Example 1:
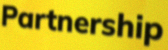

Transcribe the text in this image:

Partnership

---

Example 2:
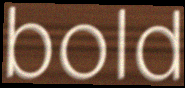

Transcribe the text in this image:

bold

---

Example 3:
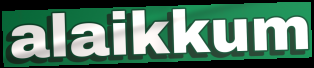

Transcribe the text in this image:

alaikkum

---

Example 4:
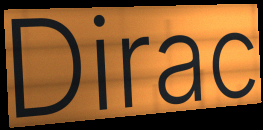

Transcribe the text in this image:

Dirac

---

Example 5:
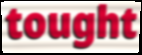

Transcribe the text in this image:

tought